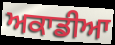
ਅਕਾਡੀਆ